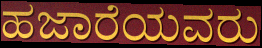
ಹಜಾರೆಯವರು